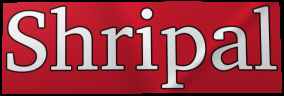
Shripal